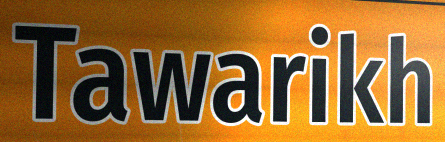
Tawarikh